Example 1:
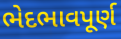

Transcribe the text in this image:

ભેદભાવપૂર્ણ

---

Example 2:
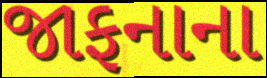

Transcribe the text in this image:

જાફનાના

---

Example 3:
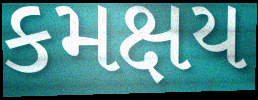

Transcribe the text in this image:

કમક્ષય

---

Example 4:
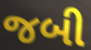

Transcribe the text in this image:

જબી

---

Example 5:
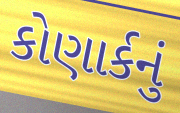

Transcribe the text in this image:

કોણાર્કનું